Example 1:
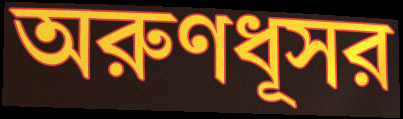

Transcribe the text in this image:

অরুণধূসর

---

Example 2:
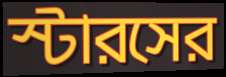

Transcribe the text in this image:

স্টারসের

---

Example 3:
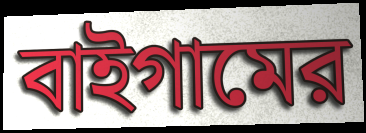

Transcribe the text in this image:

বাইগামের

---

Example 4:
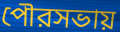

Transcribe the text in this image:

পৌরসভায়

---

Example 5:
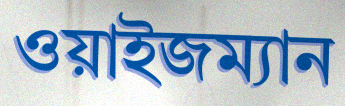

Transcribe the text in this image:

ওয়াইজম্যান